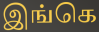
இங்கெ